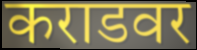
कराडवर